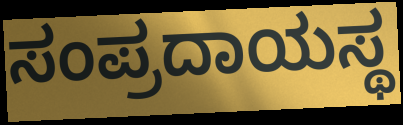
ಸಂಪ್ರದಾಯಸ್ಥ